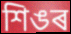
শিঙৰ